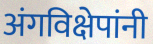
अंगविक्षेपांनी